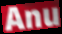
Anu